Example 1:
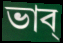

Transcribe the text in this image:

ভাব্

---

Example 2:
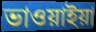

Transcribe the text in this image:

ভাওয়াইয়া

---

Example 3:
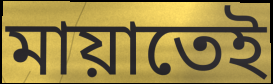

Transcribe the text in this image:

মায়াতেই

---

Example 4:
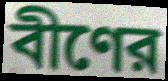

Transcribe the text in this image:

বীণের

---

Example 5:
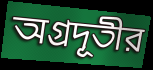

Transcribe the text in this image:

অগ্রদূতীর